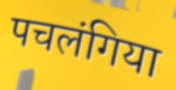
पचलंगिया